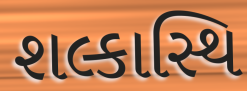
શલ્કાસ્થિ